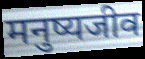
मनुष्यजीव